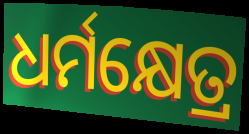
ଧର୍ମକ୍ଷେତ୍ର